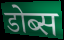
डोब्स